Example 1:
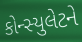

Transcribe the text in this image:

કોન્સ્યુલેટને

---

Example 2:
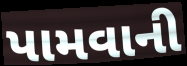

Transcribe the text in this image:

પામવાની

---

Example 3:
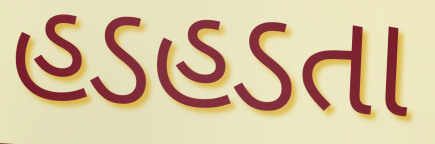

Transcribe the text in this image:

હડહડતા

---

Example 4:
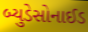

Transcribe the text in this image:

બ્યુડેસોનાઈડ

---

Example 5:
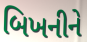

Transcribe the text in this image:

બિખનીને